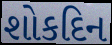
શોકદિન